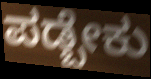
ಪಡ್ಬೇಕು